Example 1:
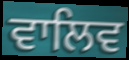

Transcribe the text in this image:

ਵਾਲਿਵ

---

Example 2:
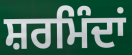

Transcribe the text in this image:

ਸ਼ਰਮਿੰਦਾਂ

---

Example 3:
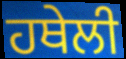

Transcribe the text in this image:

ਹਥੇਲੀ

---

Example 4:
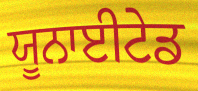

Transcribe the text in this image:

ਯੂਨਾਈਟੇਡ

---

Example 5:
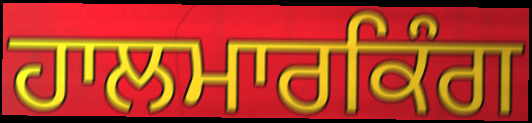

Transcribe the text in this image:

ਹਾਲਮਾਰਕਿੰਗ